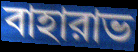
বাহারাভ